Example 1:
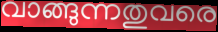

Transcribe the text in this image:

വാങ്ങുന്നതുവരെ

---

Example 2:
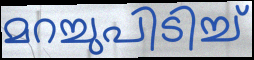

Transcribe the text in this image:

മറച്ചുപിടിച്ച്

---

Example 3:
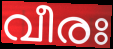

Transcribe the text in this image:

വീരഃ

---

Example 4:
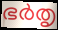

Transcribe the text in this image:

ഭർതൃ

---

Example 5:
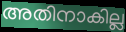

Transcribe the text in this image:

അതിനാകില്ല